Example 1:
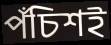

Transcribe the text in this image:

পঁচিশই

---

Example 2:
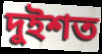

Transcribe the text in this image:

দুইশত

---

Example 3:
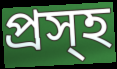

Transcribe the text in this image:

প্রস্হ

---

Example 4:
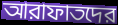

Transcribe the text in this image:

আরাফাতদের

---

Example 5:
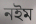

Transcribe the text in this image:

নইম